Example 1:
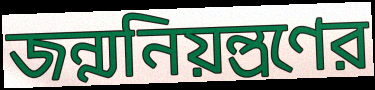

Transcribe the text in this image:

জন্মনিয়ন্ত্রণের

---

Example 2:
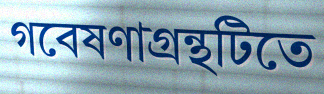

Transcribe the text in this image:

গবেষণাগ্রন্থটিতে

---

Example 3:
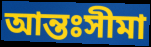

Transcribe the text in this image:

আন্তঃসীমা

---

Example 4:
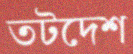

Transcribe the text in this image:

তটদেশ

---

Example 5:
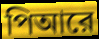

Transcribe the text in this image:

পিআরে